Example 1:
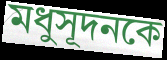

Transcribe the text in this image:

মধুসূদনকে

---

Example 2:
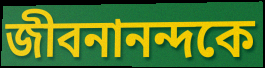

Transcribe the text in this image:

জীবনানন্দকে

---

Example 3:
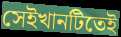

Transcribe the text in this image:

সেইখানটিতেই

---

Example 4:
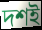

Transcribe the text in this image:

দশই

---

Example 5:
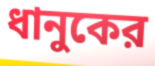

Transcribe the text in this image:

ধানুকের